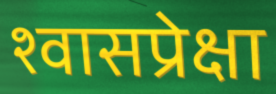
श्वासप्रेक्षा